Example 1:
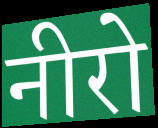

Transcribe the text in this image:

नीरो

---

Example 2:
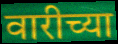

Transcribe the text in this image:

वारीच्या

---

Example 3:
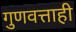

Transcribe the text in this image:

गुणवत्ताही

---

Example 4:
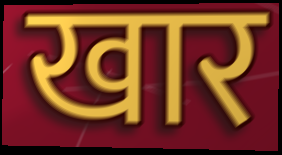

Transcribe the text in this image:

खार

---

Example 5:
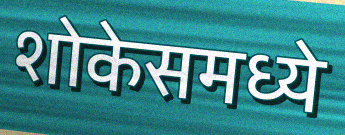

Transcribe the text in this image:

शोकेसमध्ये